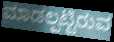
ಮಾಡಲ್ಪಟ್ಟಿರುವ